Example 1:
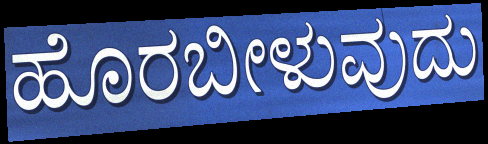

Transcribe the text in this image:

ಹೊರಬೀಳುವುದು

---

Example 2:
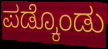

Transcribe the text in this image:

ಪಡ್ಕೊಂಡು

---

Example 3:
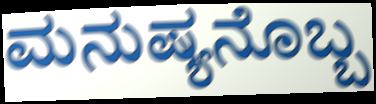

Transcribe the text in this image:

ಮನುಷ್ಯನೊಬ್ಬ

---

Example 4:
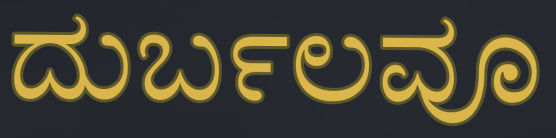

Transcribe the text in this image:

ದುರ್ಬಲವೂ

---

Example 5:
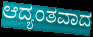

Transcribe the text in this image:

ಆದ್ಯಂತವಾದ